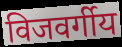
विजवर्गीय